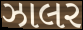
ઝાલર